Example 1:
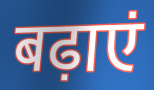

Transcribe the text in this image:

बढ़ाएं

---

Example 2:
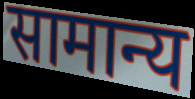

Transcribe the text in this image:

सामान्य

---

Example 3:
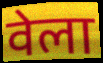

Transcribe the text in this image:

वेला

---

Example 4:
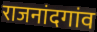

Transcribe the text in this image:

राजनांदगांव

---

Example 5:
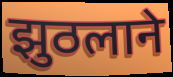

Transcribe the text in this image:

झुठलाने